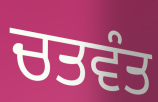
ਚਤਵੰਤ